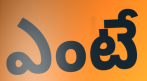
ఎంటే